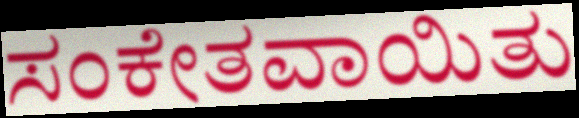
ಸಂಕೇತವಾಯಿತು